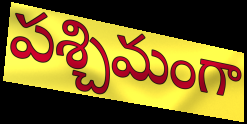
పశ్చిమంగా